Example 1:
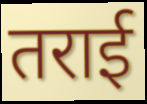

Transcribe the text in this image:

तराई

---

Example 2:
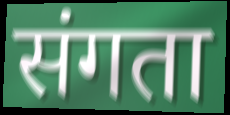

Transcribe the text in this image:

संगता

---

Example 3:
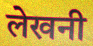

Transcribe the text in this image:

लेखनी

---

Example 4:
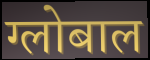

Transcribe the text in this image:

ग्लोबाल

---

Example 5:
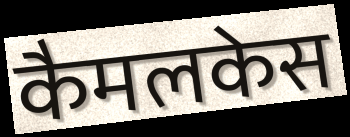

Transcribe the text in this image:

कैमलकेस